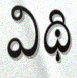
విథి